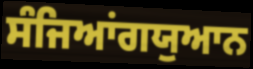
ਸੰਜਿਆਂਗਯੁਆਨ